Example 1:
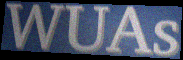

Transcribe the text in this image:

WUAs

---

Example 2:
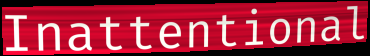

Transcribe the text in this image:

Inattentional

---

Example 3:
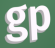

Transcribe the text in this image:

gp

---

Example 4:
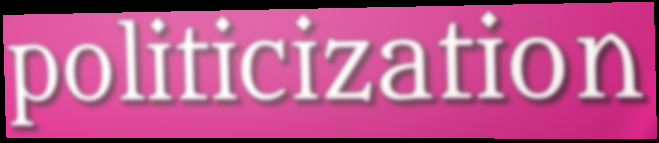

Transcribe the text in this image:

politicization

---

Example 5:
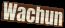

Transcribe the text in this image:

Wachun